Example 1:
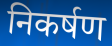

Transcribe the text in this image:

निकर्षण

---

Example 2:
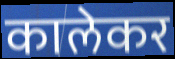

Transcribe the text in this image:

कालेकर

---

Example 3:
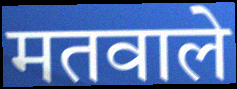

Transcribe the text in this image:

मतवाले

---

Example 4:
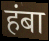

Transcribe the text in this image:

हंबा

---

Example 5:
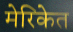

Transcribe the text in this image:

मेरिकेत